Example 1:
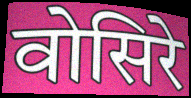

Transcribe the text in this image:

वोसिरे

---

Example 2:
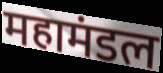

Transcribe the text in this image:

महामंडल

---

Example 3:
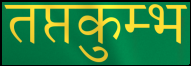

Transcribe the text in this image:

तप्तकुम्भ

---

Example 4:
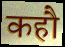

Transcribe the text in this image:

कहौ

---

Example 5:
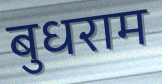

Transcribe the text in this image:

बुधराम